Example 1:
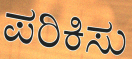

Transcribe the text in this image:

ಪರಿಕಿಸು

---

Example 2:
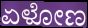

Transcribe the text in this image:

ಏಳೋಣ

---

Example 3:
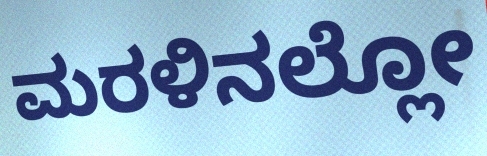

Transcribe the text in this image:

ಮರಳಿನಲ್ಲೋ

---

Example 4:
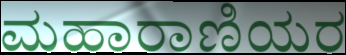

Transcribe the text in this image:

ಮಹಾರಾಣಿಯರ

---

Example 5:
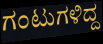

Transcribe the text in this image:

ಗಂಟುಗಳಿದ್ದ